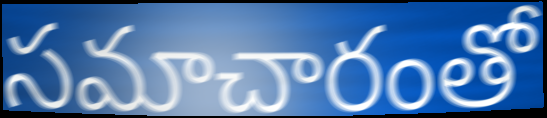
సమాచారంతో